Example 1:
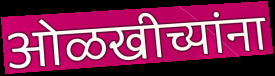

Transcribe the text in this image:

ओळखीच्यांना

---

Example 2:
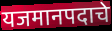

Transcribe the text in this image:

यजमानपदाचे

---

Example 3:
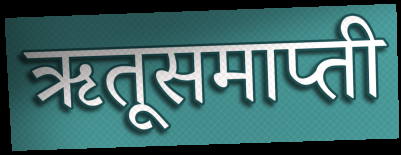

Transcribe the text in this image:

ऋतूसमाप्ती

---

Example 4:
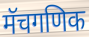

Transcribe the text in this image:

मॅचगणिक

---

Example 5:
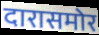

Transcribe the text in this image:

दारासमोर